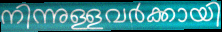
നിന്നുള്ളവർക്കായി